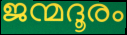
ജന്മദൂരം